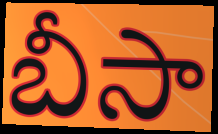
బీసా